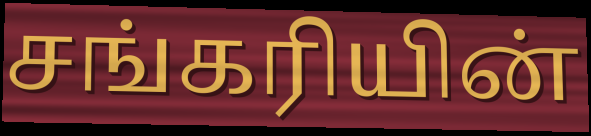
சங்கரியின்